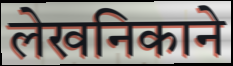
लेखनिकाने